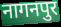
नागनपुर